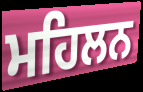
ਮਹਿਲਨ